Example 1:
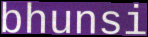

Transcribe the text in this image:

bhunsi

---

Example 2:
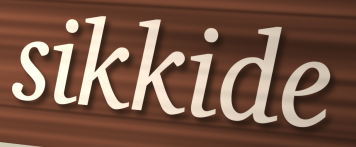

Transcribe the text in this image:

sikkide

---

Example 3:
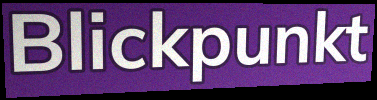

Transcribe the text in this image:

Blickpunkt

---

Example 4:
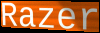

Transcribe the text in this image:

Razer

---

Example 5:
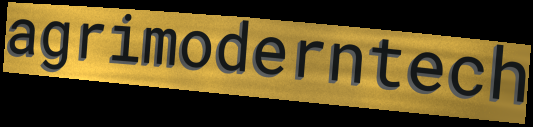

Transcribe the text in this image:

agrimoderntech